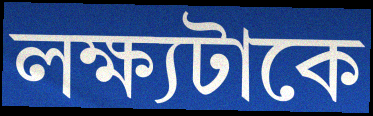
লক্ষ্যটাকে